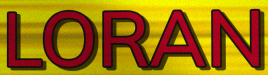
LORAN